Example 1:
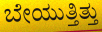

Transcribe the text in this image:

ಬೇಯುತ್ತಿತ್ತು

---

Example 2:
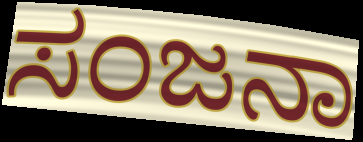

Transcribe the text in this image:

ಸಂಜನಾ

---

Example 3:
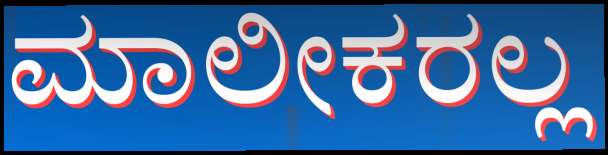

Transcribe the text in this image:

ಮಾಲೀಕರಲ್ಲ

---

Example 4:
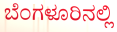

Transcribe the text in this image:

ಬೆಂಗಳೂರಿನಲ್ಲಿ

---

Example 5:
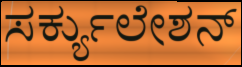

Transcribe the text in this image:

ಸರ್ಕ್ಯುಲೇಶನ್